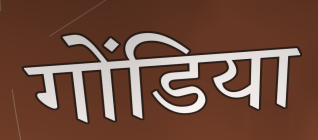
गोंडिया